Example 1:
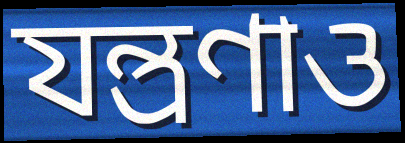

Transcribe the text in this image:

যন্ত্রণাও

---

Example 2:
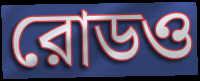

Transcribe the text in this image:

রোডও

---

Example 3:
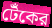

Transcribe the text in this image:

টেঁকের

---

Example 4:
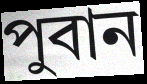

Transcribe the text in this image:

পুবান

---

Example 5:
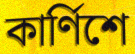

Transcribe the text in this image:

কার্ণিশে